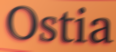
Ostia